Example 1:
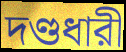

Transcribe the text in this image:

দণ্ডধারী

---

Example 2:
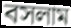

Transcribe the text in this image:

বসলাম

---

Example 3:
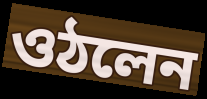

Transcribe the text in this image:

ওঠলেন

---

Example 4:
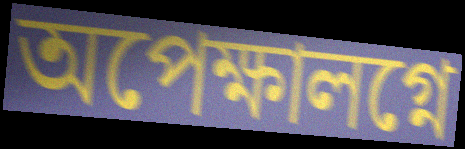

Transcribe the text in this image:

অপেক্ষালগ্নে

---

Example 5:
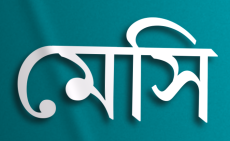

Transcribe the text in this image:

মেসি